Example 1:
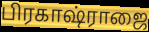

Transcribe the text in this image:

பிரகாஷ்ராஜை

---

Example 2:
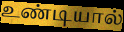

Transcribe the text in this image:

உண்டியால்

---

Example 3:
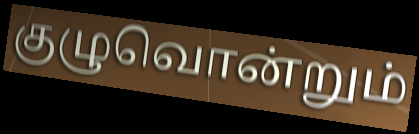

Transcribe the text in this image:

குழுவொன்றும்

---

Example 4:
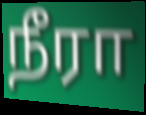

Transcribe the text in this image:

நீரா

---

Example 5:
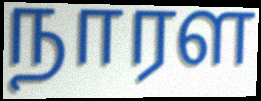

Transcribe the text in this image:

நாரள